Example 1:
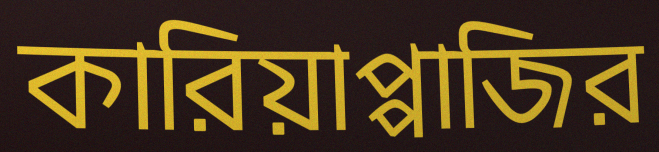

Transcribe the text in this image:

কারিয়াপ্পাজির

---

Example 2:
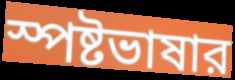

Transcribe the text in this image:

স্পষ্টভাষার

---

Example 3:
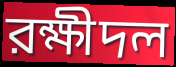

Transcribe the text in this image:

রক্ষীদল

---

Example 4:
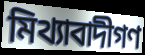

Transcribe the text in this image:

মিথ্যাবাদীগণ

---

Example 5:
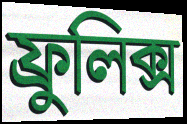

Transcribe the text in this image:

ফ্রুলিক্স